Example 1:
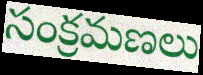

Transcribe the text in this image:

సంక్రమణలు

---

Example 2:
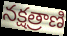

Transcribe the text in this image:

నక్షత్రాణి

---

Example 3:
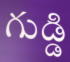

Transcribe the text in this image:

గుడ్డి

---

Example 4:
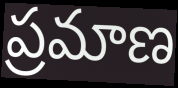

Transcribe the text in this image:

ప్రమాణ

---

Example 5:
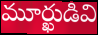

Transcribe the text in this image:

మూర్ఖుడివి